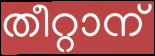
തീറ്റാന്